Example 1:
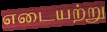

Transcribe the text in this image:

எடையற்று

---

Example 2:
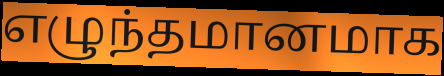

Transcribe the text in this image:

எழுந்தமானமாக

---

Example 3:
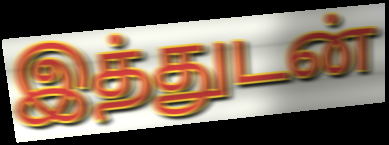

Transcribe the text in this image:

இத்துடன்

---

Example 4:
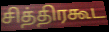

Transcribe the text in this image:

சித்திரகூட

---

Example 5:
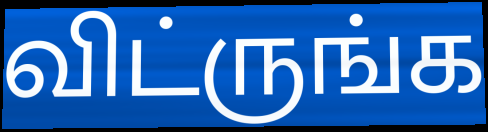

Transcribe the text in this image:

விட்ருங்க